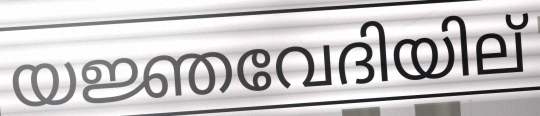
യജ്ഞവേദിയില്